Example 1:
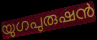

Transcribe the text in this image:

യുഗപുരുഷൻ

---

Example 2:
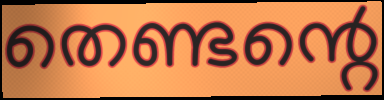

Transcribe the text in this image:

തെണ്ടന്റെ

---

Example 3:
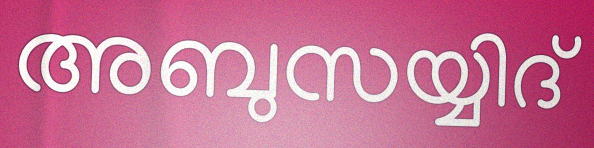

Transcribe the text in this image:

അബുസയ്യിദ്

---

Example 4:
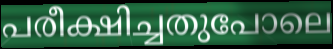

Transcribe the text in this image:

പരീക്ഷിച്ചതുപോലെ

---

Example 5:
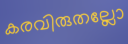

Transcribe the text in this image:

കരവിരുതല്ലോ